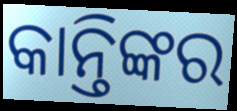
କାନ୍ତିଙ୍କର